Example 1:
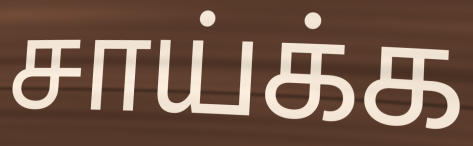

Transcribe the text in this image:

சாய்க்க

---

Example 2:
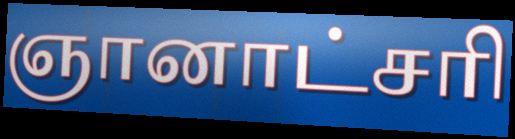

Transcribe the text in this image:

ஞானாட்சரி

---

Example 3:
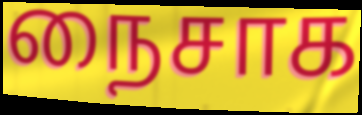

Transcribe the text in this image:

நைசாக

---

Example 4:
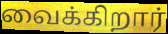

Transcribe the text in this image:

வைக்கிறார்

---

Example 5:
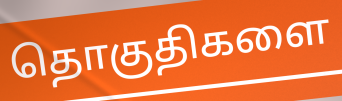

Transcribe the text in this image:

தொகுதிகளை